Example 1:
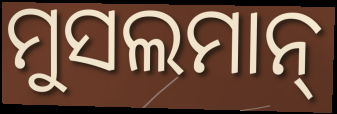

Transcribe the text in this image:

ମୁସଲମାନ୍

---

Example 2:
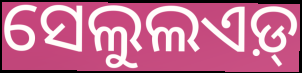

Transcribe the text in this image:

ସେଲୁଲଏଡ଼୍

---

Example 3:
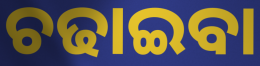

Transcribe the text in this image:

ଚଢାଇବା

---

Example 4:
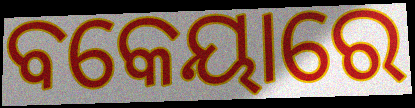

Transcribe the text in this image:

ବକେୟାରେ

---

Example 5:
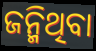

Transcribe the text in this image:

ଜନ୍ମିଥିବା